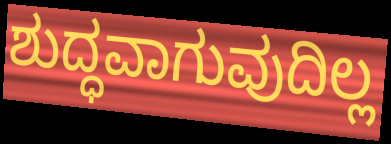
ಶುದ್ಧವಾಗುವುದಿಲ್ಲ